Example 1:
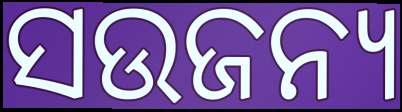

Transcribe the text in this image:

ସଉଜନ୍ୟ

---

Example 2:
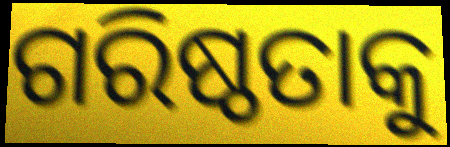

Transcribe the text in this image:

ଗରିଷ୍ଠତାକୁ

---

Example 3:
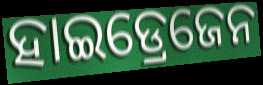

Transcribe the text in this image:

ହାଇଡ୍ରେଜେନ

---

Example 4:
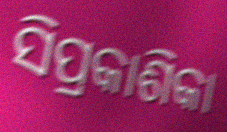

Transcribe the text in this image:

ସିପ୍ରକାଶିକା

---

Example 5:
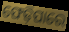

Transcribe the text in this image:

ଫେଡ଼ିପାରେ